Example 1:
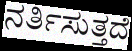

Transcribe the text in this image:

ನರ್ತಿಸುತ್ತದೆ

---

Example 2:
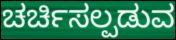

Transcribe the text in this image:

ಚರ್ಚಿಸಲ್ಪಡುವ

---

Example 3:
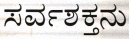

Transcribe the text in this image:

ಸರ್ವಶಕ್ತನು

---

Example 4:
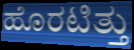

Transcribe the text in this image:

ಹೊರಟಿತ್ತು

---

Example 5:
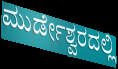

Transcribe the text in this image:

ಮುರ್ಡೇಶ್ವರದಲ್ಲಿ